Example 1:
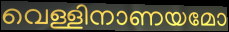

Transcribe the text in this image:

വെള്ളിനാണയമോ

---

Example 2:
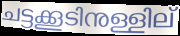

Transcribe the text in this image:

ചട്ടക്കൂടിനുള്ളില്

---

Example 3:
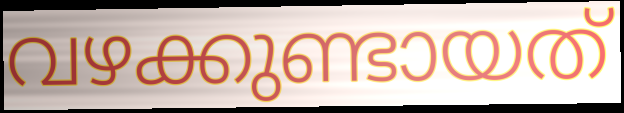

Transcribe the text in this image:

വഴക്കുണ്ടായത്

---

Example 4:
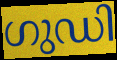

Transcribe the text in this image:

ഗുഡി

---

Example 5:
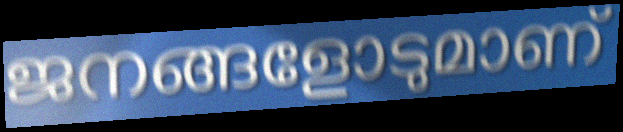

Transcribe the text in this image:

ജനങ്ങളോടുമാണ്